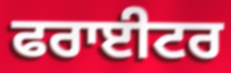
ਫਰਾਈਟਰ